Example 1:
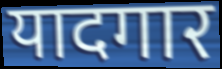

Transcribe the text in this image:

यादगार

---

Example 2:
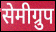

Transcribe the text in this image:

सेमीग्रुप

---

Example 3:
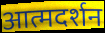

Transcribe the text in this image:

आत्मदर्शन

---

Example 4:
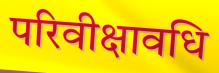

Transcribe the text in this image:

परिवीक्षावधि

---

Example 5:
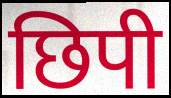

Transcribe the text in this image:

छिपी